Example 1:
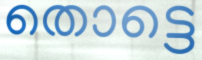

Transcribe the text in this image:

തൊട്ടെ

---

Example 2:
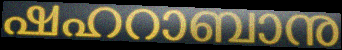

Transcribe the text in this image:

ഷഹറാബാനു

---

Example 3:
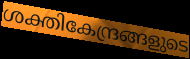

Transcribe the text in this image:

ശക്തികേന്ദ്രങ്ങളുടെ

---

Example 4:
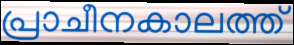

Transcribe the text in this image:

പ്രാചീനകാലത്ത്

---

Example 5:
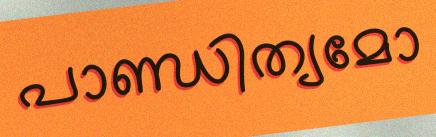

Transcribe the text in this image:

പാണ്ഡിത്യമോ